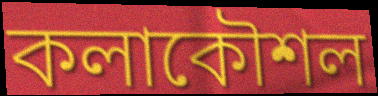
কলাকৌশল